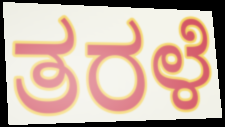
ತರಳೆ